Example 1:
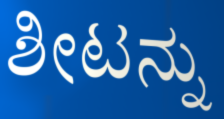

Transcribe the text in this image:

ಶೀಟನ್ನು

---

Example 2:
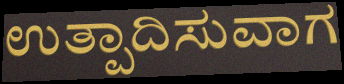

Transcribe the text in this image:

ಉತ್ಪಾದಿಸುವಾಗ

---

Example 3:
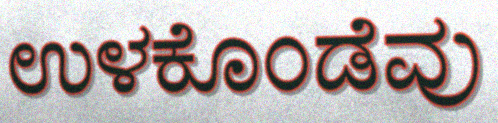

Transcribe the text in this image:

ಉಳಕೊಂಡೆವು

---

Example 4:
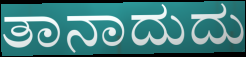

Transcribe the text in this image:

ತಾನಾದುದು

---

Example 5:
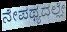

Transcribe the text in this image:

ನೇಪಥ್ಯದಲ್ಲೇ